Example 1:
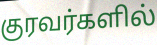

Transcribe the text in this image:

குரவர்களில்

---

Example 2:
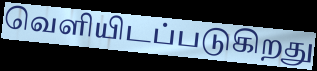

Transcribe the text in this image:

வெளியிடப்படுகிறது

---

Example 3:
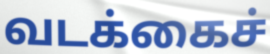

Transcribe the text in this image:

வடக்கைச்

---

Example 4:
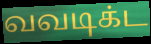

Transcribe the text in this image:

வவடிக்ட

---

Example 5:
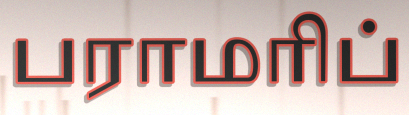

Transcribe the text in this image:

பராமரிப்